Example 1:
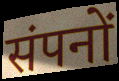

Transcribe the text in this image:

संपनों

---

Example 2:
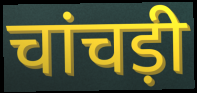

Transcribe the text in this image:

चांचड़ी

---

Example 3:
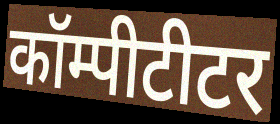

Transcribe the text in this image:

कॉम्पीटीटर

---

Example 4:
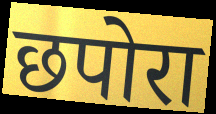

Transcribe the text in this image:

छपोरा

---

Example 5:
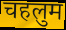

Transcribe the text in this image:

चहलुम